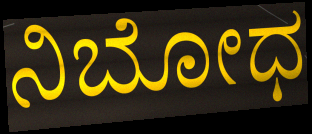
ನಿಬೋಧ